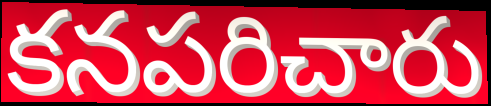
కనపరిచారు